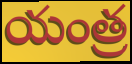
యంత్ర